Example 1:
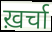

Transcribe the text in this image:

ख़र्चा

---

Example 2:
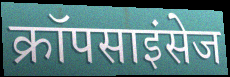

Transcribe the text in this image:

क्रॉपसाइंसेज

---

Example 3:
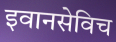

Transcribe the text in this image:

इवानसेविच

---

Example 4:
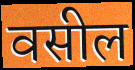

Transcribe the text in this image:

वसील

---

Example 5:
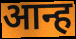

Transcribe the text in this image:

आन्ह